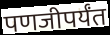
पणजीपर्यंत